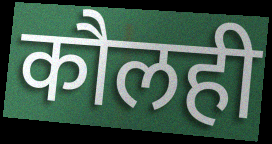
कौलही